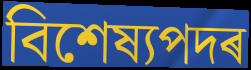
বিশেষ্যপদৰ